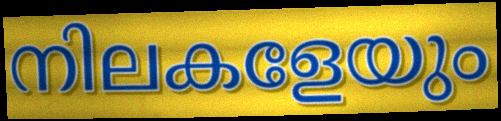
നിലകളേയും